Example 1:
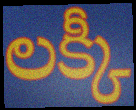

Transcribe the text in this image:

లక్కీ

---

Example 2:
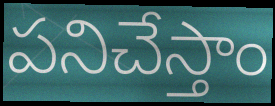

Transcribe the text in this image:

పనిచేస్తాం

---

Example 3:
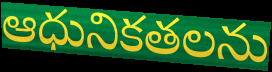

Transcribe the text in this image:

ఆధునికతలను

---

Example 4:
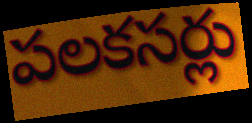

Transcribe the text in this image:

పలకసర్లు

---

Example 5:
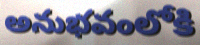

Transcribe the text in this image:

అనుభవంలోకి